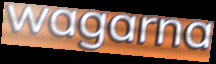
wagarna